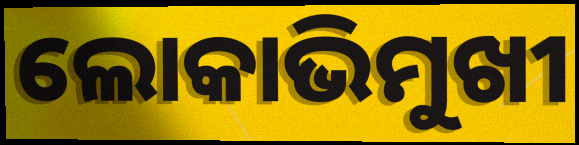
ଲୋକାଭିମୁଖୀ